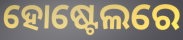
ହୋଷ୍ଟେଲରେ